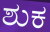
ಶುಕ